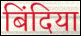
बिंदिया